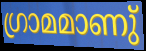
ഗ്രാമമാണു്